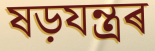
ষড়যন্ত্ৰৰ